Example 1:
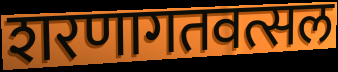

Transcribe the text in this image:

शरणागतवत्सल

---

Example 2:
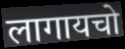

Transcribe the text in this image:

लागायचो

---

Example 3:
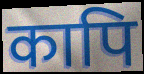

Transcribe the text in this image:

कापि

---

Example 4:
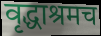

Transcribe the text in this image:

वृद्धाश्रमच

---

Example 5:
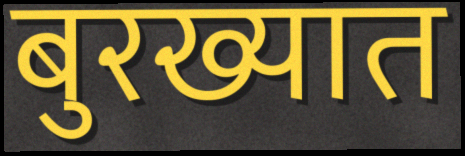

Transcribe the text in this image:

बुरख्यात